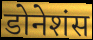
डोनेशंस